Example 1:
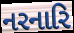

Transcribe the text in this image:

નરનારિ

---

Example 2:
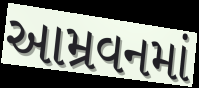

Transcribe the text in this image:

આમ્રવનમાં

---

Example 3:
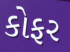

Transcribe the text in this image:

કોફર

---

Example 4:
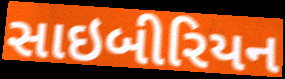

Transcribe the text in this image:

સાઇબીરિયન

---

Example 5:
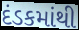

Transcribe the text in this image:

દંડકમાંથી